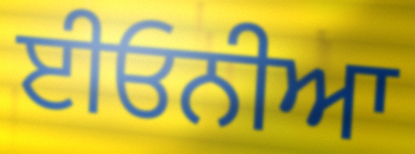
ਈਓਨੀਆ